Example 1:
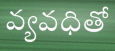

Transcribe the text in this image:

వ్యవధితో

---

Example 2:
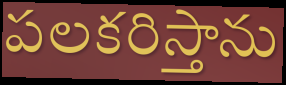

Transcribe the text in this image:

పలకరిస్తాను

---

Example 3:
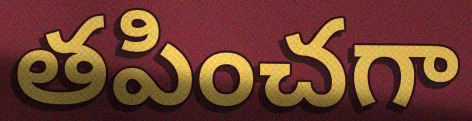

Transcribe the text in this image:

తపించగా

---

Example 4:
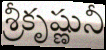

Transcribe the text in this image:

శ్రీకృష్ణునీ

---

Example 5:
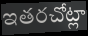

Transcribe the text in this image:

ఇతరచోట్లా